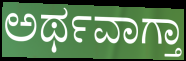
ಅರ್ಥವಾಗ್ತಾ